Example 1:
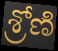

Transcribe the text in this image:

శ్రోణి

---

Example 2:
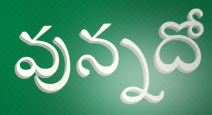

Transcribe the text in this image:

వున్నదో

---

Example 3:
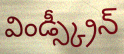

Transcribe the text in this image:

విండ్స్క్రీన్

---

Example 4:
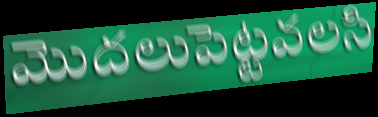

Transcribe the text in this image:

మొదలుపెట్టవలసి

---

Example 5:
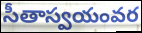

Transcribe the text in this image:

సీతాస్వయంవర